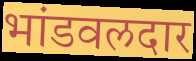
भांडवलदार